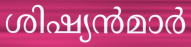
ശിഷ്യൻമാർ